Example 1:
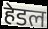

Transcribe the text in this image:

हेडल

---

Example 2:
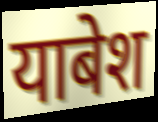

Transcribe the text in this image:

याबेश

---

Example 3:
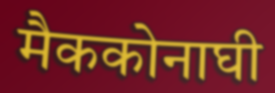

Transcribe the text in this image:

मैककोनाघी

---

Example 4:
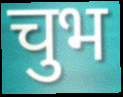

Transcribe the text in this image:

चुभ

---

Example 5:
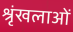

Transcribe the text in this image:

श्रृंखलाओं